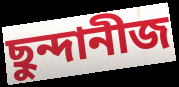
ছুন্দানীজ